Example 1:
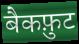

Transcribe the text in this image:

बैकफ़ुट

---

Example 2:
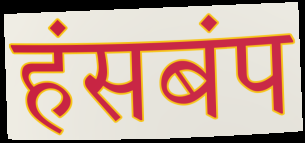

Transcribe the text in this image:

हंसबंप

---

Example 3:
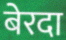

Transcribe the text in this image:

बेरदा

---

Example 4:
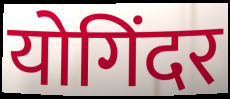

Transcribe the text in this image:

योगिंदर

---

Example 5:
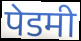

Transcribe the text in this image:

पेडमी